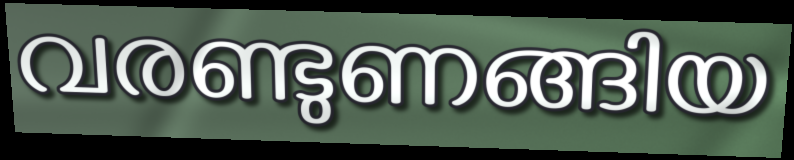
വരണ്ടുണങ്ങിയ